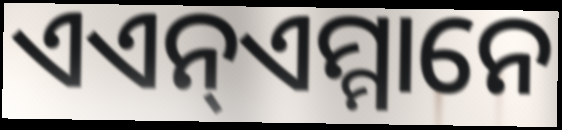
ଏଏନ୍ଏମ୍ମାନେ